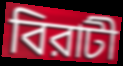
বিরাটী